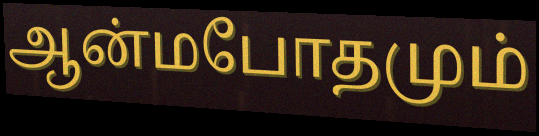
ஆன்மபோதமும்